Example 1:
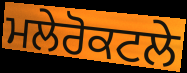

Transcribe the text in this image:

ਮਲੇਰੋਕਟਲੇ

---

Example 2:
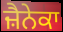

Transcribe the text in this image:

ਜ਼ੈਨੇਕਾ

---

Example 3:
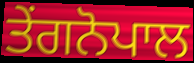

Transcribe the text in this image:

ਤੇਂਗਨੋਪਾਲ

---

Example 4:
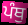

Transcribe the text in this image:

ਪੰਥੁ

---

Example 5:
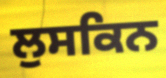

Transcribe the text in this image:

ਲੁਸਕਿਨ